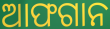
ଆଫଗାନ